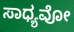
ಸಾಧ್ಯವೋ